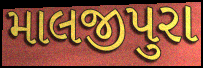
માલજીપુરા